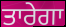
ਤਾਰੇਗਾ